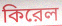
কিরেল